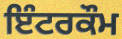
ਇੰਟਰਕੌਮ